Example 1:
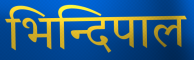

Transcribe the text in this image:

भिन्दिपाल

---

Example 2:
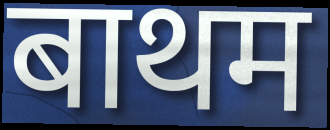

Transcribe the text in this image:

बाथम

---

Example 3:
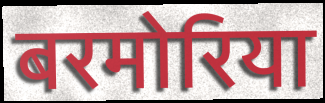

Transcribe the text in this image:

बरमोरिया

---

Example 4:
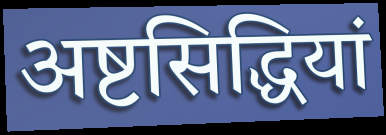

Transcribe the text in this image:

अष्टसिद्धियां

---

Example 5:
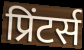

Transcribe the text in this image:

प्रिंटर्स